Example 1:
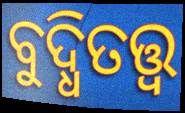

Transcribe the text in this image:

ବୁଦ୍ଧିତତ୍ତ୍ବ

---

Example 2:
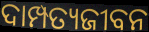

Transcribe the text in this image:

ଦାମ୍ପତ୍ୟଜୀବନ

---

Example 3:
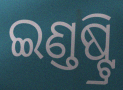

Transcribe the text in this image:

ଇଣ୍ଡଷ୍ଟ୍ରି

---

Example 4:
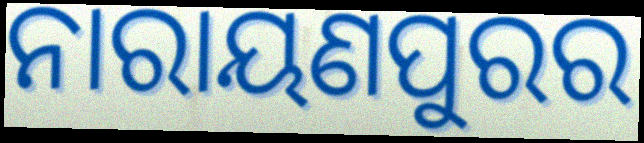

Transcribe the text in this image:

ନାରାୟଣପୁରର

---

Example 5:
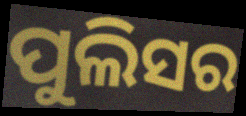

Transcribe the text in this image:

ପୁଲିସର